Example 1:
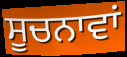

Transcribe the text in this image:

ਸੂਚਨਾਵਾਂ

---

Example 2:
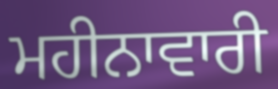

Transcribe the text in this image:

ਮਹੀਨਾਵਾਰੀ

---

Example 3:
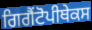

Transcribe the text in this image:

ਗਿਗੈਂਟੋਪੀਥੇਕਸ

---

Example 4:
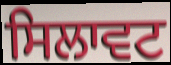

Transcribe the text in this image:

ਸਿਲਾਵਟ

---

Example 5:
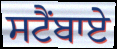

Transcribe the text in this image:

ਸਟੈਂਬਾਏ